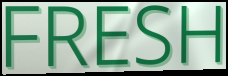
FRESH